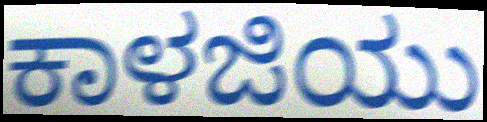
ಕಾಳಜಿಯು